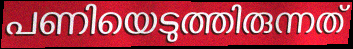
പണിയെടുത്തിരുന്നത്